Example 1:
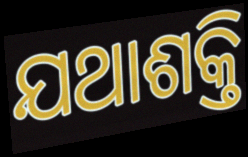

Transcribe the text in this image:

ଯଥାଶକ୍ତି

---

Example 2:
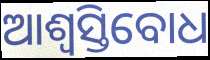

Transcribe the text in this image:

ଆଶ୍ଵସ୍ତିବୋଧ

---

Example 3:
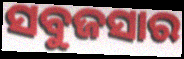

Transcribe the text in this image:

ସବୁଜସାର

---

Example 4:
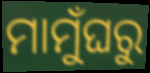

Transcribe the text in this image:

ମାମୁଁଘରୁ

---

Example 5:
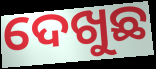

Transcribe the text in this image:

ଦେଖୁଛ